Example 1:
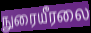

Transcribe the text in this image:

நுரையீரலை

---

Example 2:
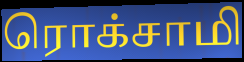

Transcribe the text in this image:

ரொக்சாமி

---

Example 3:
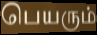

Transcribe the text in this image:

பெயரும்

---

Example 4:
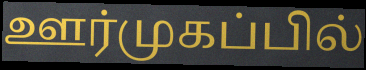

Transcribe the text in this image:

ஊர்முகப்பில்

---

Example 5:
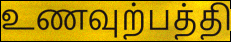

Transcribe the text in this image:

உணவுற்பத்தி